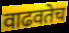
वाढवतेच